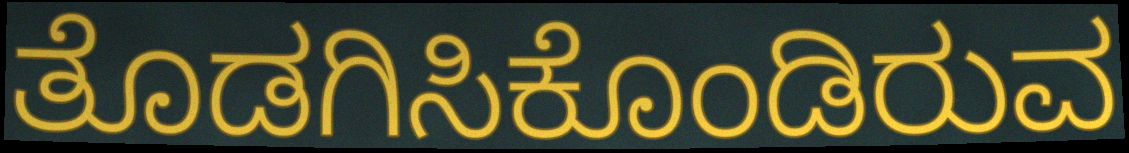
ತೊಡಗಿಸಿಕೊಂಡಿರುವ